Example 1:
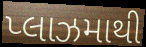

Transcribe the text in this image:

પ્લાઝમાથી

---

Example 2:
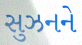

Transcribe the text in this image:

સુઝનને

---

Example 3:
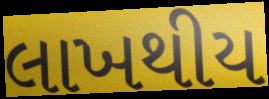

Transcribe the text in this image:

લાખથીય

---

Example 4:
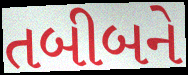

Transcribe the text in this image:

તબીબને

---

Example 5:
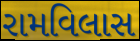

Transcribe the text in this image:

રામવિલાસ